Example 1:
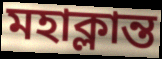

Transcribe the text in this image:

মহাক্লান্ত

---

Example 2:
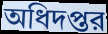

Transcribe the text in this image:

অধিদপ্তর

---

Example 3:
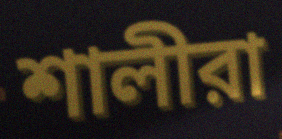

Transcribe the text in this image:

শালীরা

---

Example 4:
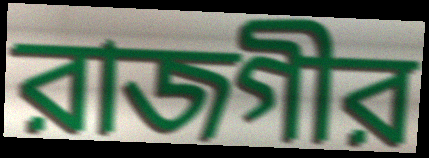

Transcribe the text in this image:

রাজগীর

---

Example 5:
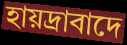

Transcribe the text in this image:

হায়দ্রাবাদে